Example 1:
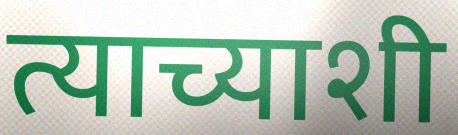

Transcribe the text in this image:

त्याच्याशी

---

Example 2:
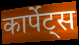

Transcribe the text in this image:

कार्पेट्स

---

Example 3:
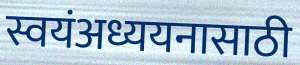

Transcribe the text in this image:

स्वयंअध्ययनासाठी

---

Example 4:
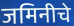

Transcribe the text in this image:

जमिनीचे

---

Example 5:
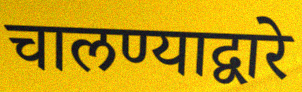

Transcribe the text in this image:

चालण्याद्वारे